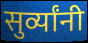
सुर्व्यांनी